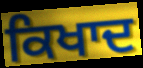
ਕਿਖਾਦ